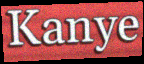
Kanye